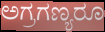
ಅಗ್ರಗಣ್ಯರೂ